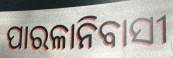
ପାରଳାନିବାସୀ